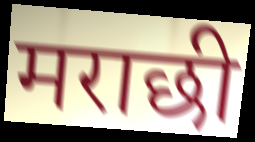
मराछी